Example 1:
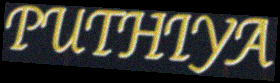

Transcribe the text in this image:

PUTHIYA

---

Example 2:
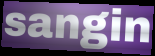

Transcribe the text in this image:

sangin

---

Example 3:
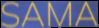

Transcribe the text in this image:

SAMA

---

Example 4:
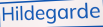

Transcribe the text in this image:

Hildegarde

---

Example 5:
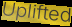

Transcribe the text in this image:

Uplifted